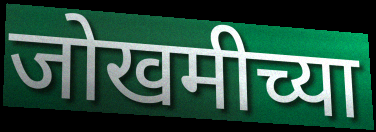
जोखमीच्या